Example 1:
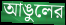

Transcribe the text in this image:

আঙুলের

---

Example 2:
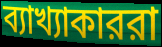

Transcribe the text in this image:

ব্যাখ্যাকাররা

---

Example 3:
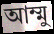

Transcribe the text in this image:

আম্মু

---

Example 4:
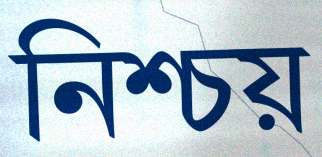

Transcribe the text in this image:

নিশ্চয়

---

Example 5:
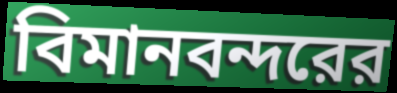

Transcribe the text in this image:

বিমানবন্দরের